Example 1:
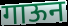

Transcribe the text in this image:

गाऊन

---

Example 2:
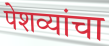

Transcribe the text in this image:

पेशव्यांचा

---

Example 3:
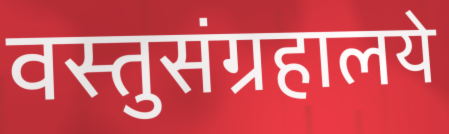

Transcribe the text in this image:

वस्तुसंग्रहालये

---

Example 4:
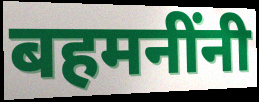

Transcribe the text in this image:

बहमनींनी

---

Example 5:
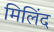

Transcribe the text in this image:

मिलिंद